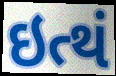
ઇત્થં